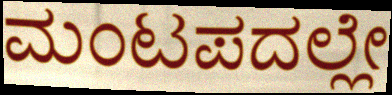
ಮಂಟಪದಲ್ಲೇ